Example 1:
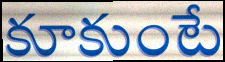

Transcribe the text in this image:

కూకుంటే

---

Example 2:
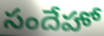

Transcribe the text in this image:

సందేహో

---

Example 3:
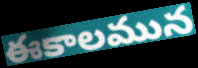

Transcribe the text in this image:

ఈకాలమున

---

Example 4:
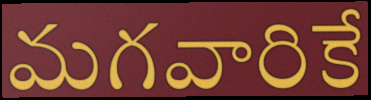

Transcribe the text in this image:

మగవారికే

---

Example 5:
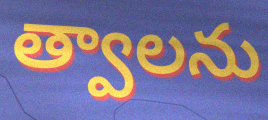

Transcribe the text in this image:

త్వాలను